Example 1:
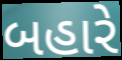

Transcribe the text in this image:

બહારે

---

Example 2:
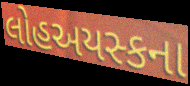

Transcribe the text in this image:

લોહઅયસ્કના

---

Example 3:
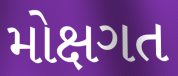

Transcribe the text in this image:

મોક્ષગત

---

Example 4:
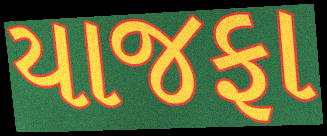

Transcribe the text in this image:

યાજફા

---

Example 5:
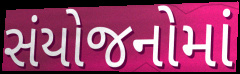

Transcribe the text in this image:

સંયોજનોમાં